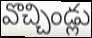
వొచ్చిండ్లు